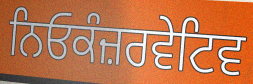
ਨਿਓਕੰਜ਼ਰਵੇਟਿਵ